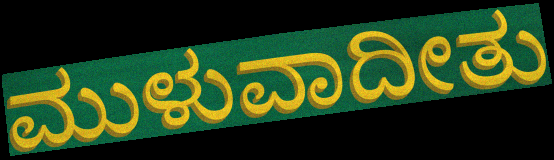
ಮುಳುವಾದೀತು